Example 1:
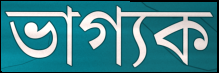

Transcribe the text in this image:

ভাগ্যক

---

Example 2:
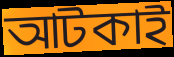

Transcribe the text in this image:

আটকাই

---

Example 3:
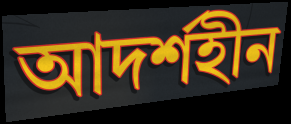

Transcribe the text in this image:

আদৰ্শহীন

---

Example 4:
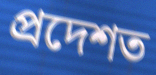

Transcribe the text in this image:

প্ৰদেশত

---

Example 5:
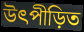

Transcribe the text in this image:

উৎপীড়িত